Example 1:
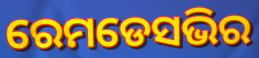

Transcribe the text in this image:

ରେମଡେସଭିର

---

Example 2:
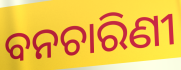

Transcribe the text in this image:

ବନଚାରିଣୀ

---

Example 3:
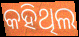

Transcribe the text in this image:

କହିଥିଲ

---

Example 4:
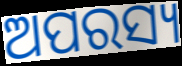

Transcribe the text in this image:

ଅପରସ୍ୟ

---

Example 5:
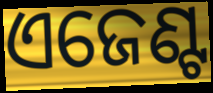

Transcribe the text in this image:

ଏଜେଣ୍ଟ